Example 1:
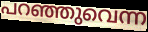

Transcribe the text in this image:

പറഞ്ഞുവെന്ന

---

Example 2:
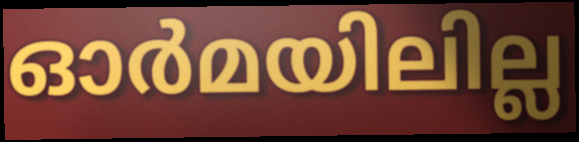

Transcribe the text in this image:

ഓർമയിലില്ല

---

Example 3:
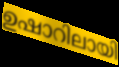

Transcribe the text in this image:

ഉഷാറിലായി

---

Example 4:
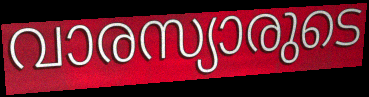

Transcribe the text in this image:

വാരസ്യാരുടെ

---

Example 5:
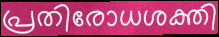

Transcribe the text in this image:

പ്രതിരോധശക്തി